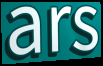
ars